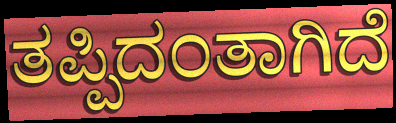
ತಪ್ಪಿದಂತಾಗಿದೆ